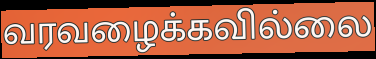
வரவழைக்கவில்லை